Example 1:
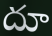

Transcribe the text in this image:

దూ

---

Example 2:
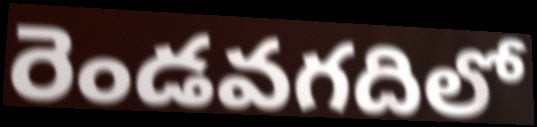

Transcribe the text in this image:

రెండవగదిలో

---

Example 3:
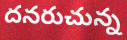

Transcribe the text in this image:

దనరుచున్న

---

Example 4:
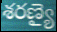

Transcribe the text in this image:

శరణ్యై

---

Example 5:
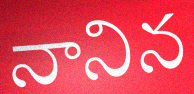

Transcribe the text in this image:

నానిన